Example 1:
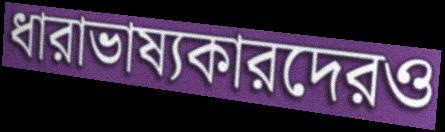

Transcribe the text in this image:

ধারাভাষ্যকারদেরও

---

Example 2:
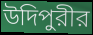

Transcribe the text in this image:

উদিপুরীর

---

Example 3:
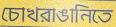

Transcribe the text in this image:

চোখরাঙানিতে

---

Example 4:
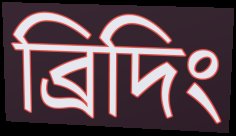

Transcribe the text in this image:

ব্রিদিং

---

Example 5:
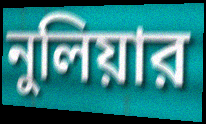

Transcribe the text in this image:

নুলিয়ার